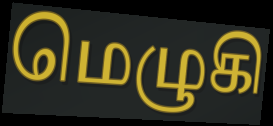
மெழுகி